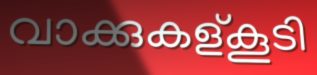
വാക്കുകള്കൂടി